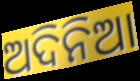
ଅଦିନିଆ